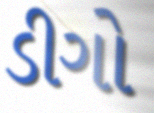
ડીગો